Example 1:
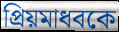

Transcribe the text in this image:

প্রিয়মাধবকে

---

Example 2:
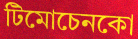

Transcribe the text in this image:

টিমোচেনকো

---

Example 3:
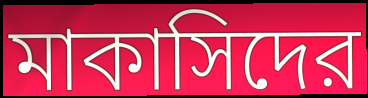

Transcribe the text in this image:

মাকাসিদের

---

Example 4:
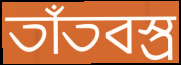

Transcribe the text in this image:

তাঁতবস্ত্র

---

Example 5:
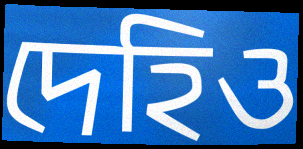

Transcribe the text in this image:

দেহিও